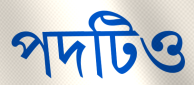
পদটিও